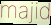
majid